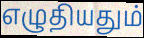
எழுதியதும்